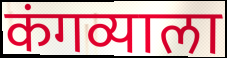
कंगव्याला